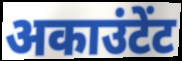
अकाउंटेंट